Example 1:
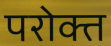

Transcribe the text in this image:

परोक्त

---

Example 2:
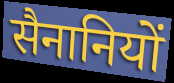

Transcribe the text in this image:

सैनानियों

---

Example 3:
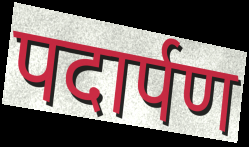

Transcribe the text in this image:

पदार्पण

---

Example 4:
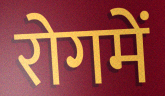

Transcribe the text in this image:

रोगमें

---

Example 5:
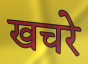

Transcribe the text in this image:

खचरे